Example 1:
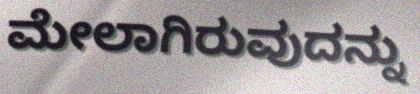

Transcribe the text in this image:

ಮೇಲಾಗಿರುವುದನ್ನು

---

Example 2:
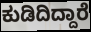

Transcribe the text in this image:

ಕುಡಿದಿದ್ದಾರೆ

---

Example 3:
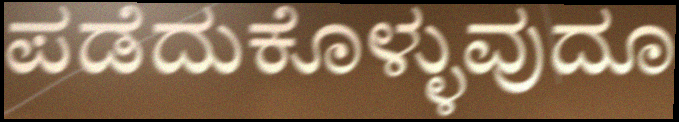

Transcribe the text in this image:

ಪಡೆದುಕೊಳ್ಳುವುದೂ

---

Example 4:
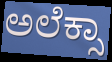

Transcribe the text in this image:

ಅಲೆಕ್ಸಾ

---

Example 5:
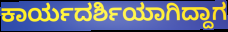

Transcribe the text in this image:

ಕಾರ್ಯದರ್ಶಿಯಾಗಿದ್ದಾಗ